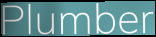
Plumber